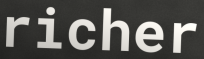
richer